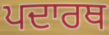
ਪਦਾਰਥ